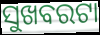
ସୁଖବରଟା